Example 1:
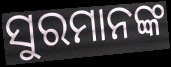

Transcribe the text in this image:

ସୁରମାନଙ୍କ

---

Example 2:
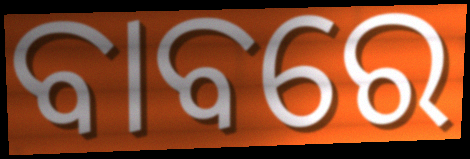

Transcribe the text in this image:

ବାବରେ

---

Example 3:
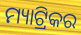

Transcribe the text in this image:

ମ୍ୟାଟ୍ରିକର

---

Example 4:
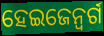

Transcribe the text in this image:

ହେଇଜେନ୍ବର୍ଗ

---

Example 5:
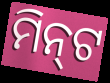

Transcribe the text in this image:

ମିନ୍‌ଟ